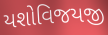
યશોવિજયજી